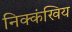
निक्कंखिय